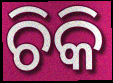
ଚିକି